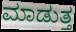
ಮಾಡುತ್ತ